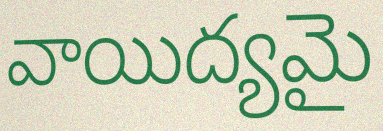
వాయిద్యమై